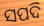
ସପଦି